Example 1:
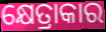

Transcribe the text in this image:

କ୍ଷେତ୍ରାକାର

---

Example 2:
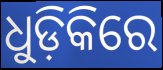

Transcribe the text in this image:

ଧୁଡ଼ିକିରେ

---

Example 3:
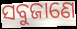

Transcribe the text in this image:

ସବୁଜାଣେ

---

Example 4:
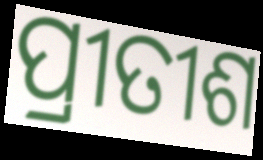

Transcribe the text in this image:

ପ୍ରୀତୀଶ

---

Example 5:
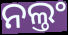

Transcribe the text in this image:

ନଲ୍ତଂ